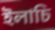
ইলাচি